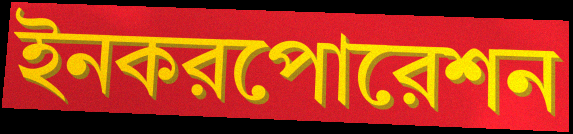
ইনকরপোরেশন